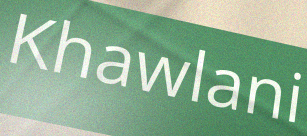
Khawlani